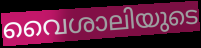
വൈശാലിയുടെ